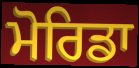
ਮੋਰਿਡਾ